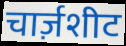
चार्ज़शीट